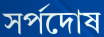
সর্পদোষ